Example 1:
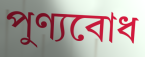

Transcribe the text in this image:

পুণ্যবোধ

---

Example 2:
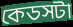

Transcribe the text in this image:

কেডসটা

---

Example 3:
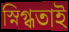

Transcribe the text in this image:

স্নিগ্ধতাই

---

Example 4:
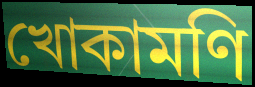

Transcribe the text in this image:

খোকামণি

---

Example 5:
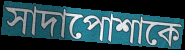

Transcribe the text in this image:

সাদাপোশাকে